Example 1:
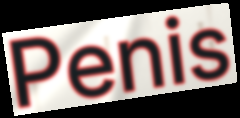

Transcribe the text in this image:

Penis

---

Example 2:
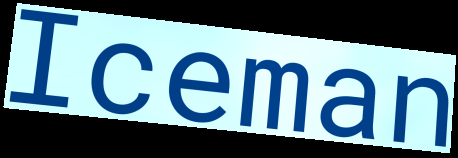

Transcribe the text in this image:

Iceman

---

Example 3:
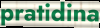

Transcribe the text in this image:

pratidina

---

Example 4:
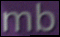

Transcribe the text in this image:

mb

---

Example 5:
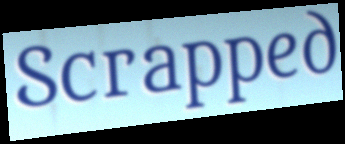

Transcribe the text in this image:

Scrapped